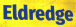
Eldredge